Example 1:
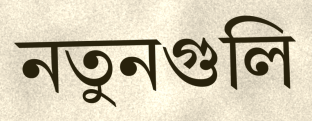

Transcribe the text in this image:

নতুনগুলি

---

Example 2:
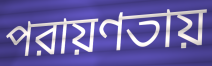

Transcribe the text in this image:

পরায়ণতায়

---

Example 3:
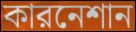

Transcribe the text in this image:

কারনেশান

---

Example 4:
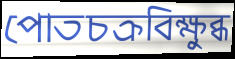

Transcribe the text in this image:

পোতচক্রবিক্ষুব্ধ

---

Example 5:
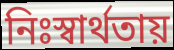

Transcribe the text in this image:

নিঃস্বার্থতায়